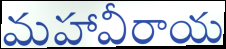
మహావీరాయ